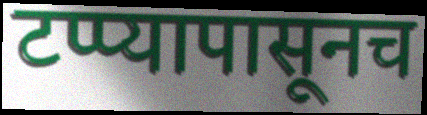
टप्प्यापासूनच